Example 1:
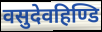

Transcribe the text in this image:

वसुदेवहिण्डि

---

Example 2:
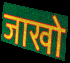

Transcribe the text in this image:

जाखो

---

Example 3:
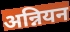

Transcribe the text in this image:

अन्नियन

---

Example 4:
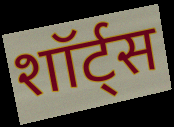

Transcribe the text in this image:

शॉर्ट्स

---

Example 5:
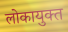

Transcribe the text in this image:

लोकायुक्त